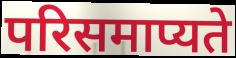
परिसमाप्यते